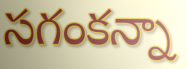
సగంకన్నా